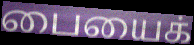
பையைக்